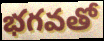
భగవతో